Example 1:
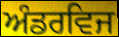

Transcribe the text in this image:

ਅੰਡਰਵਿਜ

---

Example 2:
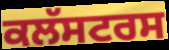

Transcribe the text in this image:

ਕਲੱਸਟਰਸ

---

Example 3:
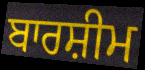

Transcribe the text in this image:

ਬਾਰਸ਼ੀਮ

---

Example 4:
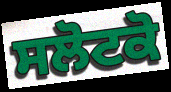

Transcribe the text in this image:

ਸਲੋਟਕੋ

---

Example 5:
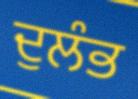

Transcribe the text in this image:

ਦੁਲੰਭ